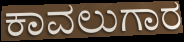
ಕಾವಲುಗಾರ